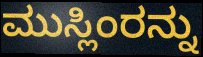
ಮುಸ್ಲಿಂರನ್ನು